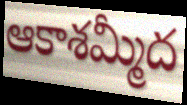
ఆకాశమ్మీద